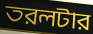
তরলটার